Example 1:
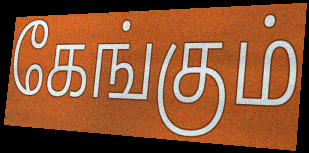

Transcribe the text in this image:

கேங்கும்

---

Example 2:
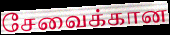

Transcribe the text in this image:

சேவைக்கான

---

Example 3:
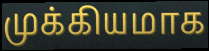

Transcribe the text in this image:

முக்கியமாக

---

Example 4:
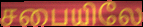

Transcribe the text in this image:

சபையிலே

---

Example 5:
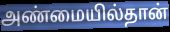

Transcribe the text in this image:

அண்மையில்தான்